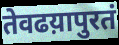
तेवढय़ापुरतं